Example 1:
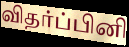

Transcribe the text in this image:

விதர்ப்பினி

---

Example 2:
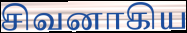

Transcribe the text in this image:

சிவனாகிய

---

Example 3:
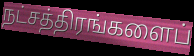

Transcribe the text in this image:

நட்சத்திரங்களைப்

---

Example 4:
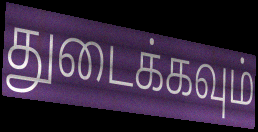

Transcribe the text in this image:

துடைக்கவும்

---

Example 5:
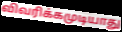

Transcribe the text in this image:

விவரிக்கமுடியாது